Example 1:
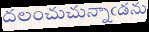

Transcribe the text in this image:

దలంచుచున్నాఁడను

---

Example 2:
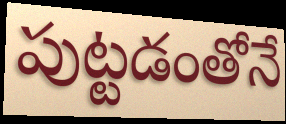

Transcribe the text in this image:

పుట్టడంతోనే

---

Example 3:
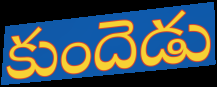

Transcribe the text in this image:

కుందెడు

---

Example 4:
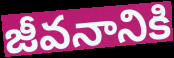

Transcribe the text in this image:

జీవనానికి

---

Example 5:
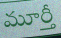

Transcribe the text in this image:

మూర్తీ